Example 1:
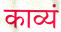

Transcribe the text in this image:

काव्यं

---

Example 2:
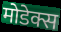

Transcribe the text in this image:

मोडेक्स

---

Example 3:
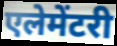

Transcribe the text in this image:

एलेमेंटरी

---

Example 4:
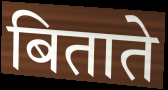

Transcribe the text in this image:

बिताते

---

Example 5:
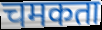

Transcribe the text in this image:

चमकता